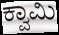
ಕ್ವಾಮಿ